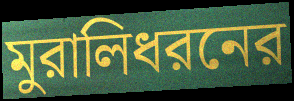
মুরালিধরনের